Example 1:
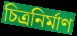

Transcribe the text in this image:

চিত্রনির্মাণ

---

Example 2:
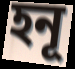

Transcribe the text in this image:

হনূ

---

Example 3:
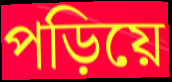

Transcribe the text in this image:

পড়িয়ে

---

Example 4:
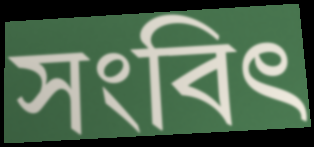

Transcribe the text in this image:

সংবিৎ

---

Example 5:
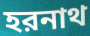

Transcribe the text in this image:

হরনাথ